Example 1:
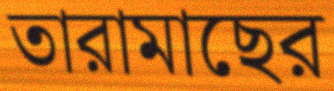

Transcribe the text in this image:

তারামাছের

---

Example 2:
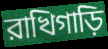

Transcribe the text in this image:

রাখিগাড়ি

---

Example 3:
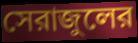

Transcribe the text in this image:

সেরাজুলের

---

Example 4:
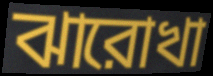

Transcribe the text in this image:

ঝারোখা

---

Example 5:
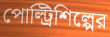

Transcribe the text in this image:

পোল্ট্রিশিল্পের